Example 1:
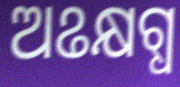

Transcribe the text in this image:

ଅଌକ୍ଷଗ୍ଧ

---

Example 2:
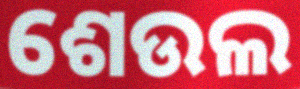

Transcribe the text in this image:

ଶେଉଲ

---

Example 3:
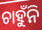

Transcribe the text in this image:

ଚାହୁଁନି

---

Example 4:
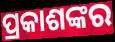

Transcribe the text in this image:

ପ୍ରକାଶଙ୍କର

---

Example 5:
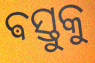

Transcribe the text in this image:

ଵସ୍ତୁକୁ